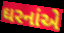
ઘરનાંએ